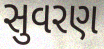
સુવરણ